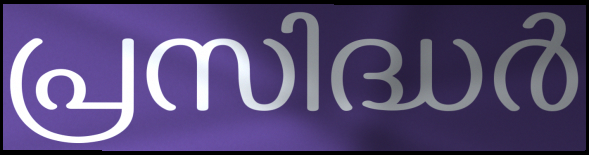
പ്രസിദ്ധർ